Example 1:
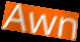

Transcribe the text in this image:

Awn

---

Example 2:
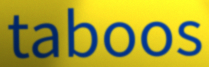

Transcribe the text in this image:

taboos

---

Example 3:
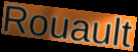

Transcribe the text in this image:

Rouault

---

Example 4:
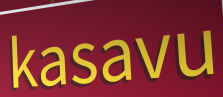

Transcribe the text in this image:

kasavu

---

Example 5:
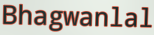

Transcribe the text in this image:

Bhagwanlal